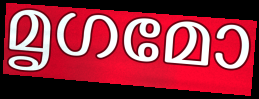
മൃഗമോ